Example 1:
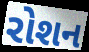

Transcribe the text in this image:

રોશન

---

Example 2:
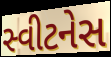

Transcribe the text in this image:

સ્વીટનેસ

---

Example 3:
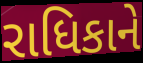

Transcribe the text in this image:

રાધિકાને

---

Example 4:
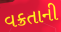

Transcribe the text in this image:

વક્રતાની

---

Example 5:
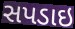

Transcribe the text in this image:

સપડાઇ